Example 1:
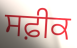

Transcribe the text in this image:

ਸਫ਼ੀਕ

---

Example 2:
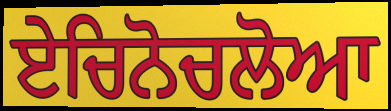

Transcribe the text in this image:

ਏਚਿਨੋਚਲੋਆ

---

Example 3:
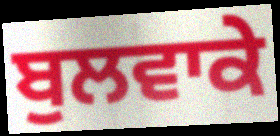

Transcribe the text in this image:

ਬੁਲਵਾਕੇ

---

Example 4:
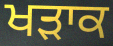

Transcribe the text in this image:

ਖੜਾਕ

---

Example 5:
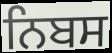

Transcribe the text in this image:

ਨਿਬਸ